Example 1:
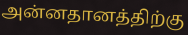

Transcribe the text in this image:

அன்னதானத்திற்கு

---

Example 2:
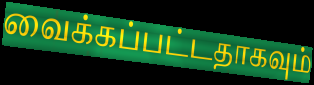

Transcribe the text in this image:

வைக்கப்பட்டதாகவும்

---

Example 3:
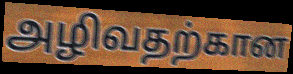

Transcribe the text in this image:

அழிவதற்கான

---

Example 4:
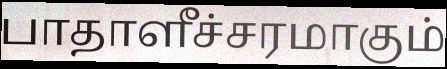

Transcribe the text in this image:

பாதாளீச்சரமாகும்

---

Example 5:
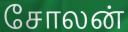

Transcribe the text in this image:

சோலன்